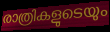
രാത്രികളുടെയും